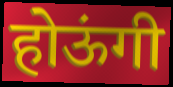
होऊंगी